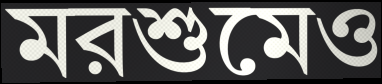
মরশুমেও